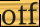
otf